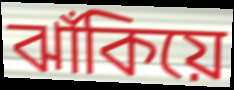
ঝাঁকিয়ে